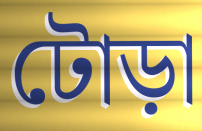
টোড়া